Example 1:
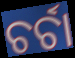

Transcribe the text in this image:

ଚର୍ଚା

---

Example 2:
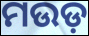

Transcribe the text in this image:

ମଉଡ଼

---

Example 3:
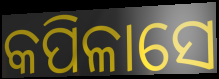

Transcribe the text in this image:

କପିଳାସେ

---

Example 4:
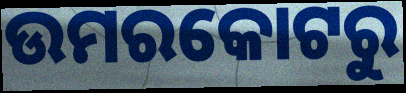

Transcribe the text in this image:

ଉମରକୋଟରୁ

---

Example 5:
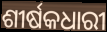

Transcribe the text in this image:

ଶୀର୍ଷକଧାରୀ